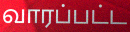
வாரப்பட்ட